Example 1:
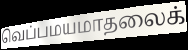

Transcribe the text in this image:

வெப்பமயமாதலைக்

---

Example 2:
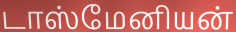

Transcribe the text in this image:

டாஸ்மேனியன்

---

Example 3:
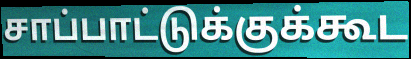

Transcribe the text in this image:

சாப்பாட்டுக்குக்கூட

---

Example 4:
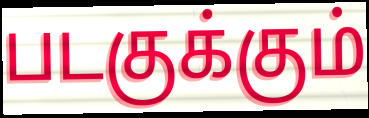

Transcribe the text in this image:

படகுக்கும்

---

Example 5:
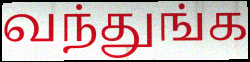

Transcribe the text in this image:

வந்துங்க